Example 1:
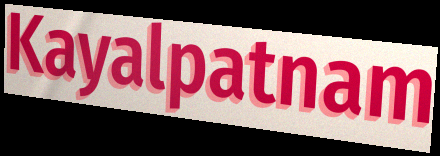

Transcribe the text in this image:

Kayalpatnam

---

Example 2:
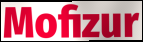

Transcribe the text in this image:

Mofizur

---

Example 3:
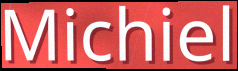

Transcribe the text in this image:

Michiel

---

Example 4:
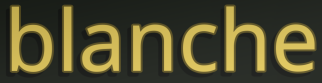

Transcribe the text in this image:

blanche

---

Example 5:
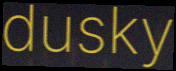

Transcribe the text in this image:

dusky